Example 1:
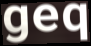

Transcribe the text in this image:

geq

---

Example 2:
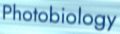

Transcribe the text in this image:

Photobiology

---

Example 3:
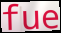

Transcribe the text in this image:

fue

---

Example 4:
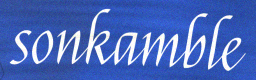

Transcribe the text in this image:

sonkamble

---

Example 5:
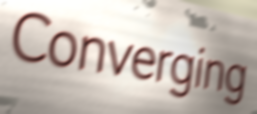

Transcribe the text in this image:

Converging